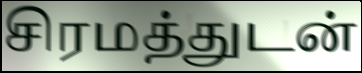
சிரமத்துடன்